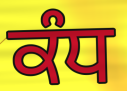
ਕੰਧ